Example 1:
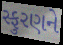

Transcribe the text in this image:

સ્ફુરણને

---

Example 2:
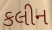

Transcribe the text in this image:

કલીન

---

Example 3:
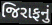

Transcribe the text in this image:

જિરાફનું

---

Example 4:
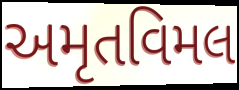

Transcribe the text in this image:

અમૃતવિમલ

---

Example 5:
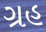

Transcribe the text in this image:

ગ્રહ